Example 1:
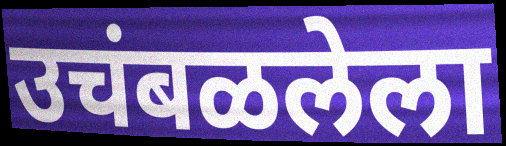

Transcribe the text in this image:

उचंबळलेला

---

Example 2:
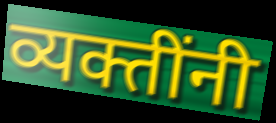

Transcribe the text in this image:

व्यक्‍तींनी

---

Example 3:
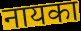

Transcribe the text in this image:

नायका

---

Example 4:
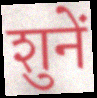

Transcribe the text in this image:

शुनें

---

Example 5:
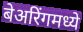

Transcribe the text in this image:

बेअरिंगमध्ये